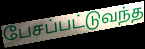
பேசப்பட்டுவந்த